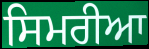
ਸਿਮਰੀਆ